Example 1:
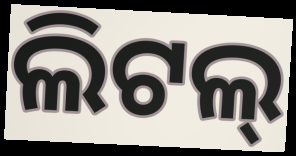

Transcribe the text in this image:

ଲିଟଲ୍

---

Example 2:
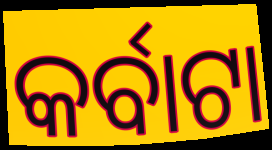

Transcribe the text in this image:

କର୍ବାଟା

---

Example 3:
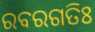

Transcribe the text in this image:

ରବରଗତିଃ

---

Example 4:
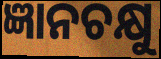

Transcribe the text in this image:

ଜ୍ଞାନଚକ୍ଷୁ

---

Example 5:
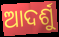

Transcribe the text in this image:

ଆଦର୍ଶୁ